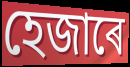
হেজাৰে